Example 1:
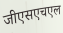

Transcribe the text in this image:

जीएसएचएल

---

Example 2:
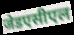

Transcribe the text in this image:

जेडएसीएल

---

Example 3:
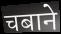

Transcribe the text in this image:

चबाने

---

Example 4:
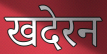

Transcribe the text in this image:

खदेरन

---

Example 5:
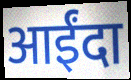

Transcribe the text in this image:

आईंदा